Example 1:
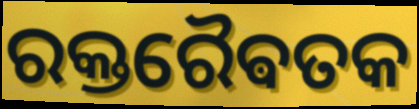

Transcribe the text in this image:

ରକ୍ତରୈଵତକ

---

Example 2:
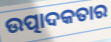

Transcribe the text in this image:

ଉତ୍ପାଦକତାର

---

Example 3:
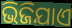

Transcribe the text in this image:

ଭିଜିଯାଏ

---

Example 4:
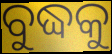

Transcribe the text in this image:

ବୁଦ୍ଧକୁ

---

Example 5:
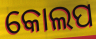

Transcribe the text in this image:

କୋଲପ